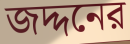
জদ্দনের